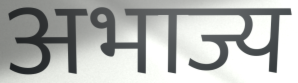
अभाज्य